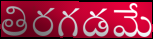
తిరగడమే